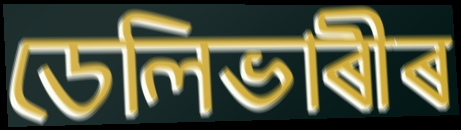
ডেলিভাৰীৰ